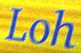
Loh